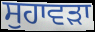
ਸੁਹਾਵੜਾ